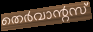
തെർവാന്റസ്